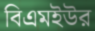
বিএমইউর